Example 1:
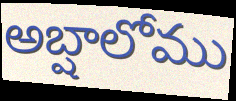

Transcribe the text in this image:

అబ్షాలోము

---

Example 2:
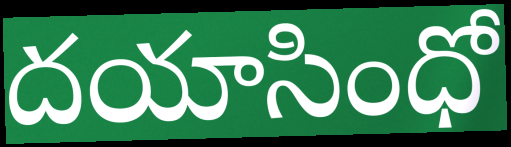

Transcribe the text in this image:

దయాసింధో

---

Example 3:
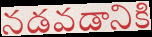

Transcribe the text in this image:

నడవడానికి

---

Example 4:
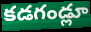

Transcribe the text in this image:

కడగండ్లూ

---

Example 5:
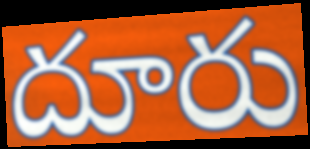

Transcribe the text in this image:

దూరు